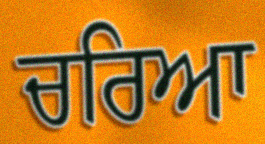
ਚਰਿਆ